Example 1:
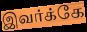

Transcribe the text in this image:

இவர்க்கே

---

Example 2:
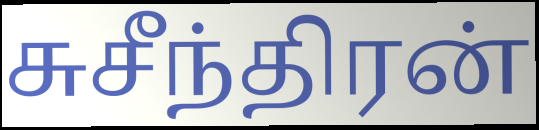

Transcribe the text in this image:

சுசீந்திரன்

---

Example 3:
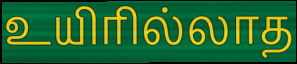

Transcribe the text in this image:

உயிரில்லாத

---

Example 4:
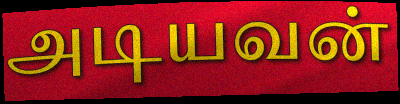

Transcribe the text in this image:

அடியவன்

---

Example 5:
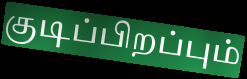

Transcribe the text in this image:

குடிப்பிறப்பும்